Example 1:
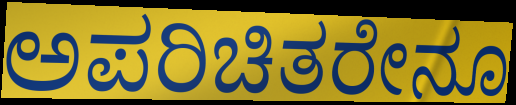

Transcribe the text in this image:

ಅಪರಿಚಿತರೇನೂ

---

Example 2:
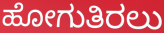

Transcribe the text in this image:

ಹೋಗುತಿರಲು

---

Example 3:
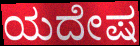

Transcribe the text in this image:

ಯದೇಷ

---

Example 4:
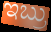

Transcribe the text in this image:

ಇಬ್ರು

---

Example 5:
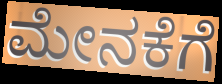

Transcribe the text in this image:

ಮೇನಕೆಗೆ